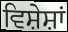
ਵਿਸ਼ੇਸ਼ਾਂ